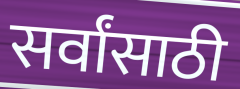
सर्वांसाठी